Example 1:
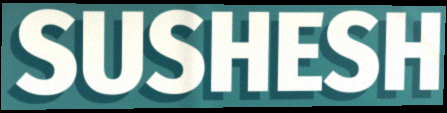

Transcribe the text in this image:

SUSHESH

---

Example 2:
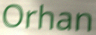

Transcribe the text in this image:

Orhan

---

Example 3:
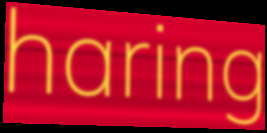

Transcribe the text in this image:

haring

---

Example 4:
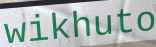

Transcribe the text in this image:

wikhuto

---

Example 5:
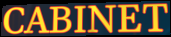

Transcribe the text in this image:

CABINET